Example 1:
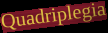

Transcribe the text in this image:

Quadriplegia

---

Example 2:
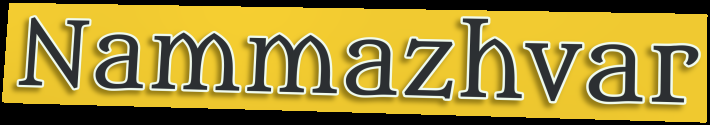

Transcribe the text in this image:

Nammazhvar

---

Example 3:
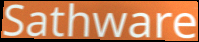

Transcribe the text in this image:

Sathware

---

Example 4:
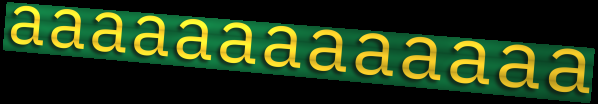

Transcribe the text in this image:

aaaaaaaaaaaaa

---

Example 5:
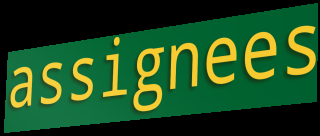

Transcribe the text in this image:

assignees